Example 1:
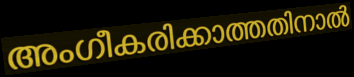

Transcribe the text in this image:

അംഗീകരിക്കാത്തതിനാൽ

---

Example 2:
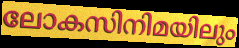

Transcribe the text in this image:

ലോകസിനിമയിലും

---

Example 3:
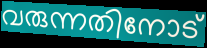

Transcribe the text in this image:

വരുന്നതിനോട്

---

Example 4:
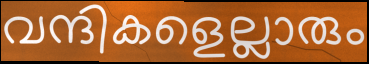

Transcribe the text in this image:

വന്ദികളെല്ലാരും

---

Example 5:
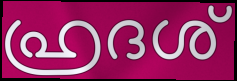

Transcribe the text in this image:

ഹ്രദശ്